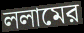
ললামের